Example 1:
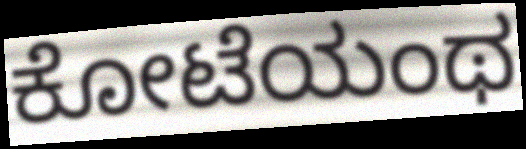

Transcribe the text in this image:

ಕೋಟೆಯಂಥ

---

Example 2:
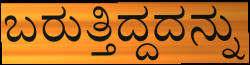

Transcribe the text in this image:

ಬರುತ್ತಿದ್ದದನ್ನು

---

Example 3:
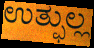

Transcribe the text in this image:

ಉತ್ಫುಲ್ಲ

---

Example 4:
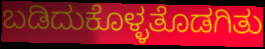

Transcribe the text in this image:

ಬಡಿದುಕೊಳ್ಳತೊಡಗಿತು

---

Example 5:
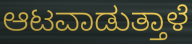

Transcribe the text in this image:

ಆಟವಾಡುತ್ತಾಳೆ